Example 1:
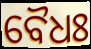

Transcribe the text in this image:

ବୈଧଃ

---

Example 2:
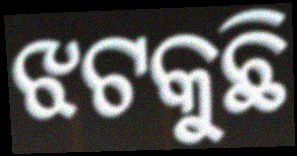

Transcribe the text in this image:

ଝଟକୁଛି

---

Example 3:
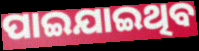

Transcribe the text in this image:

ପାଇଯାଇଥିବ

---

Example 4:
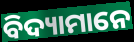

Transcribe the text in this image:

ବିଦ୍ୟାମାନେ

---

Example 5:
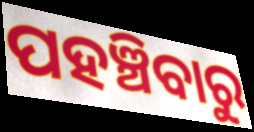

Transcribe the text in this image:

ପହଞ୍ଚିବାରୁ